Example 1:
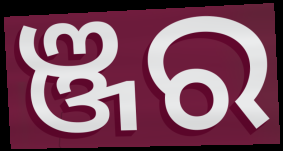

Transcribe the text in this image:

ଞ୍ଜର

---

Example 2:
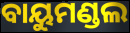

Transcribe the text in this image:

ବାୟୁମଣ୍ଡଲ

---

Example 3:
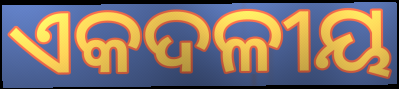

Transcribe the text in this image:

ଏକଦଳୀୟ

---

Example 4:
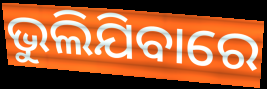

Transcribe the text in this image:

ଭୁଲିଯିବାରେ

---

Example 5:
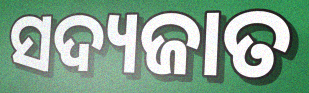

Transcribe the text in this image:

ସଦ୍ୟଜାତ